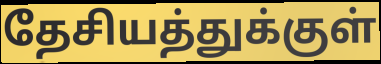
தேசியத்துக்குள்